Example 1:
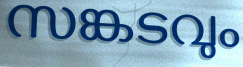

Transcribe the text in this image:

സങ്കടവും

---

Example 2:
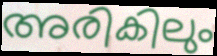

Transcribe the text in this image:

അരികിലും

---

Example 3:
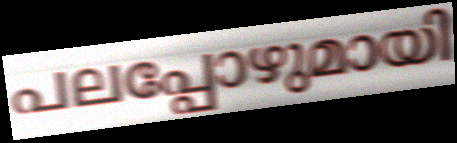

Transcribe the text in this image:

പലപ്പോഴുമായി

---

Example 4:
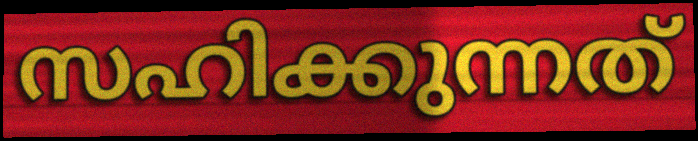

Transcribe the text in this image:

സഹിക്കുന്നത്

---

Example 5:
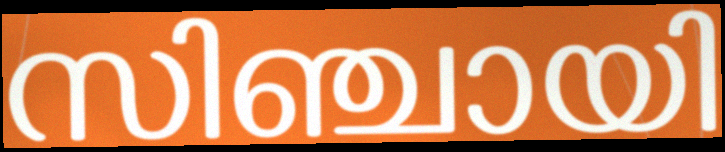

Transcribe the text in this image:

സിഞ്ചായി